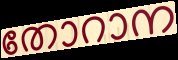
തോറാന